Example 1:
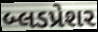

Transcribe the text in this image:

બ્લડપ્રેશર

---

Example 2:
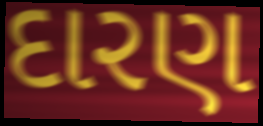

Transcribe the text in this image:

દારણ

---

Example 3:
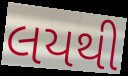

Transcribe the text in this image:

લયથી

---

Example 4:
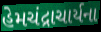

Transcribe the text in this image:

હેમચંદ્રાચાર્યના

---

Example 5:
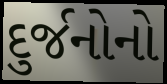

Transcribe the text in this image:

દુર્જનોનો